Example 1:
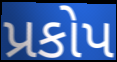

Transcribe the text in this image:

પ્રકોપ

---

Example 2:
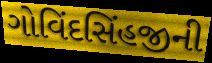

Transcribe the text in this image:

ગોવિંદસિંહજીની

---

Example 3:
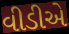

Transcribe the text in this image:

વીડીએ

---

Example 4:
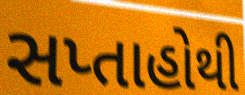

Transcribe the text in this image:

સપ્તાહોથી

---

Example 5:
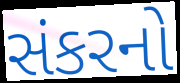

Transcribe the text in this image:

સંકરનો